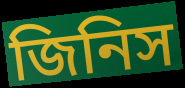
জিনিস